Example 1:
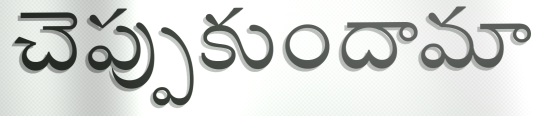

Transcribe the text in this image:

చెప్పుకుందామా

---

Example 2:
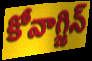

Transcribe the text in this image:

కోవాగ్జిన్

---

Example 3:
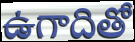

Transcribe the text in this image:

ఉగాదితో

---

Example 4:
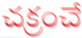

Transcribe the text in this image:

చక్రంచే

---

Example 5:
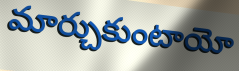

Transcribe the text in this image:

మార్చుకుంటాయో